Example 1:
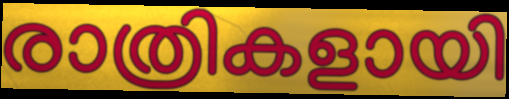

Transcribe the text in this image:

രാത്രികളായി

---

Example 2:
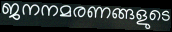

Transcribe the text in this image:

ജനനമരണങ്ങളുടെ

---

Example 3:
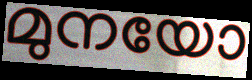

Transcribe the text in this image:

മുനയോ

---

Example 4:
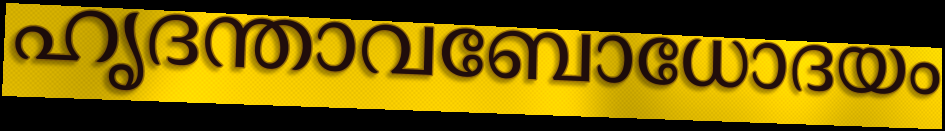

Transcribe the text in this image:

ഹൃദന്താവബോധോദയം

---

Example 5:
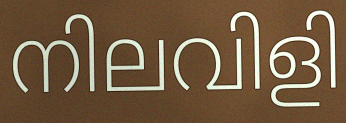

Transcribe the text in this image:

നിലവിളി